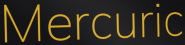
Mercuric